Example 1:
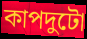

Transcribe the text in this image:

কাপদুটো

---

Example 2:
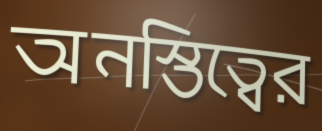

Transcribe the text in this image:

অনস্তিত্বের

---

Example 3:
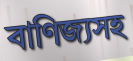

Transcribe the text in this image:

বাণিজ্যসহ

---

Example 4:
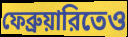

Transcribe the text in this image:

ফেব্রুয়ারিতেও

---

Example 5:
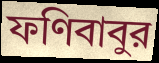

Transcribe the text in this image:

ফণিবাবুর